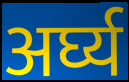
अर्घ्य